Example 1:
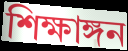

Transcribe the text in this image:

শিক্ষাঙ্গন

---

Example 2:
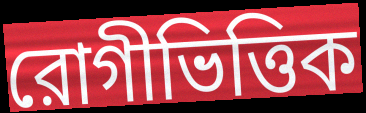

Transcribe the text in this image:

রোগীভিত্তিক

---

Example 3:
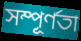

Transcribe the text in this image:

সম্পূর্ণতা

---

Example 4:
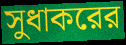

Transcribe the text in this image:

সুধাকরের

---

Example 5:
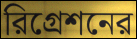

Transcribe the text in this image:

রিগ্রেশনের